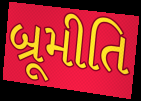
બ્રૂમીતિ